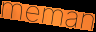
meman